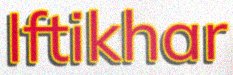
Iftikhar